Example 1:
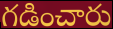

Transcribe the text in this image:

గడించారు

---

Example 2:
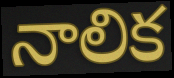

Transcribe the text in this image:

నాలిక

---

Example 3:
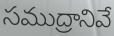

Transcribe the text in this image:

సముద్రానివే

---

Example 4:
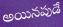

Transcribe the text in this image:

అయినపుడే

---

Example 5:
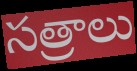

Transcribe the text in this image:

సత్రాలు